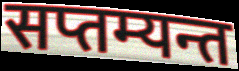
सप्तम्यन्त